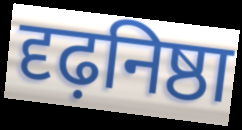
दृढ़निष्ठा